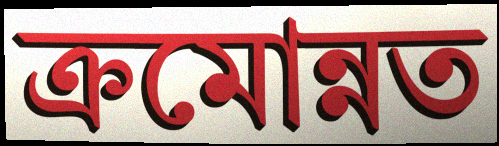
ক্রমোন্নত